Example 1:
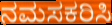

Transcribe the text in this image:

ನಮಸಕರಿಸಿ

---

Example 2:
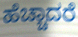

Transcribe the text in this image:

ಹೆಚ್ಚಾದರೆ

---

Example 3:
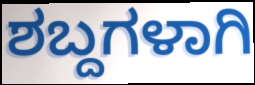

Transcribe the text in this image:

ಶಬ್ದಗಳಾಗಿ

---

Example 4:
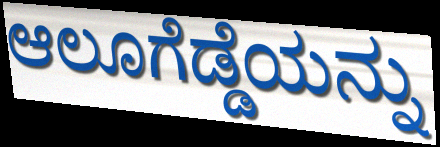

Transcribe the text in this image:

ಆಲೂಗೆಡ್ಡೆಯನ್ನು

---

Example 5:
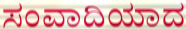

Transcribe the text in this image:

ಸಂವಾದಿಯಾದ